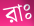
রাঃ